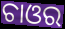
ଚାଓର